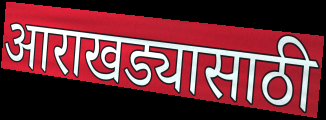
आराखड्यासाठी